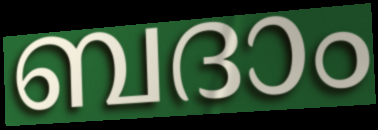
ബദാം